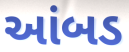
આંબડ